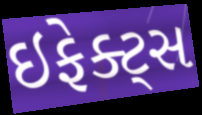
ઇફેક્ટ્સ